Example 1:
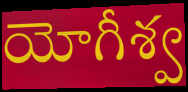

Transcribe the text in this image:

యోగీశ్వ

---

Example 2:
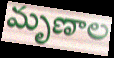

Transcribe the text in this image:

మృణాల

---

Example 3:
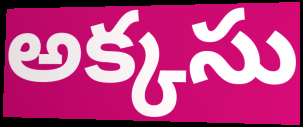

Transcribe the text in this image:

అక్కసు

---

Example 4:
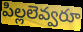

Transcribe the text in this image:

పిల్లలెవ్వరూ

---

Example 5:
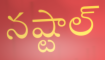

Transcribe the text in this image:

నష్టాల్